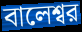
বালেশ্বর